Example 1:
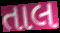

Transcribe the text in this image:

તાલ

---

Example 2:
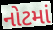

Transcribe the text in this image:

નોટમાં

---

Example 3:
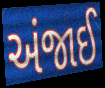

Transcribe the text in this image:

અંજાઈ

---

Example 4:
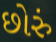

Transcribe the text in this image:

છોરું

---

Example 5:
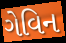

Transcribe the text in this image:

ગેવિન